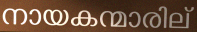
നായകന്മാരില്